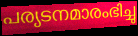
പര്യടനമാരംഭിച്ചു